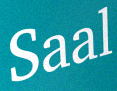
Saal